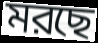
মরছে